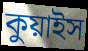
কুয়াইস